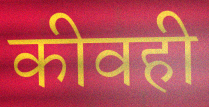
कीवही